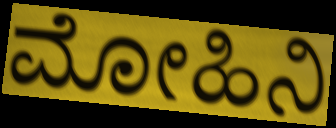
ಮೋಹಿನಿ